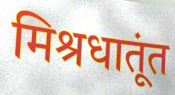
मिश्रधातूंत